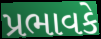
પ્રભાવકે